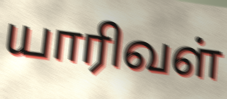
யாரிவள்